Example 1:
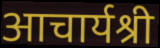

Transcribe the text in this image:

आचार्यश्री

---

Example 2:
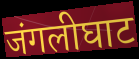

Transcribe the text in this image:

जंगलीघाट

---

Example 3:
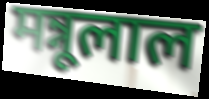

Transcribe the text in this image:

मन्नूलाल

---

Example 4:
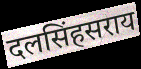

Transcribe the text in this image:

दलसिंहसराय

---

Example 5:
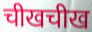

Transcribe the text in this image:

चीखचीख